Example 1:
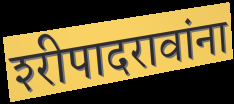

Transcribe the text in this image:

श्रीपादरावांना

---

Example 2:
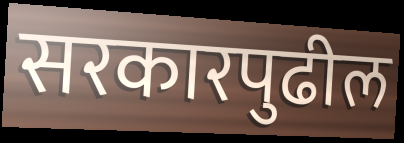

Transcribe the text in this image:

सरकारपुढील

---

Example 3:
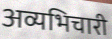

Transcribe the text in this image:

अव्यभिचारी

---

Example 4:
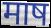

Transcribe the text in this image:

माष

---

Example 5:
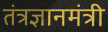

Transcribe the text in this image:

तंत्रज्ञानमंत्री